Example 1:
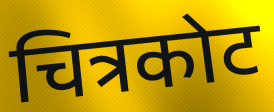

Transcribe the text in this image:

चित्रकोट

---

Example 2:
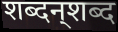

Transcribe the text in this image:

शब्दन्‌शब्द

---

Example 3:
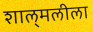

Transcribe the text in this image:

शाल्मलीला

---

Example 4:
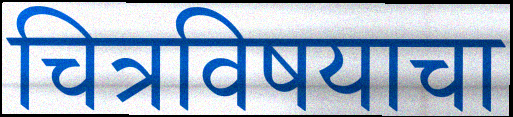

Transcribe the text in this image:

चित्रविषयाचा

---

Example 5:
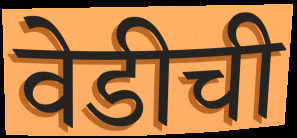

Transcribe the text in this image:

वेडीची